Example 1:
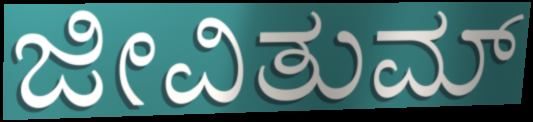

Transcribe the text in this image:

ಜೀವಿತುಮ್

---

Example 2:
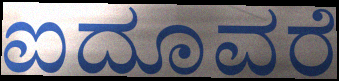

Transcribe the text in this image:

ಐದೂವರೆ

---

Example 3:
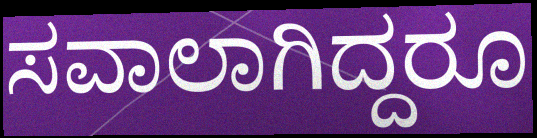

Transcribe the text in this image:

ಸವಾಲಾಗಿದ್ದರೂ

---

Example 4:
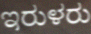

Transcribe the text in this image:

ಇರುಳರು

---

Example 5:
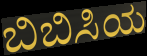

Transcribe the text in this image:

ಬಿಬಿಸಿಯ